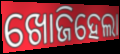
ଖୋଜିହେଲା